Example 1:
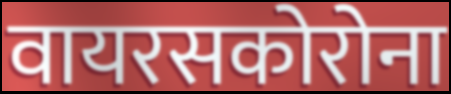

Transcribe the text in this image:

वायरसकोरोना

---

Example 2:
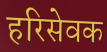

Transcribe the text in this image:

हरिसेवक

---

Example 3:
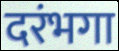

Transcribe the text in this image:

दरंभगा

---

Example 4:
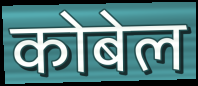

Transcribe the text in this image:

कोबेल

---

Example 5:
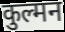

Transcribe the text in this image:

कुल्मन